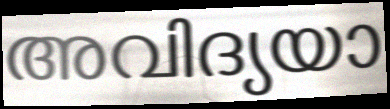
അവിദ്യയാ